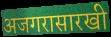
अजगरासारखी